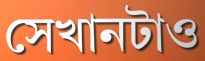
সেখানটাও